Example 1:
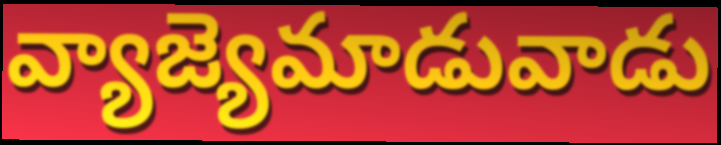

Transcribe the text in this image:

వ్యాజ్యెమాడువాడు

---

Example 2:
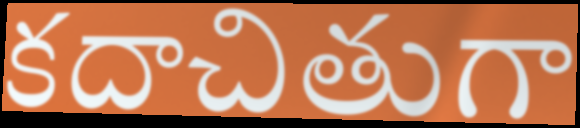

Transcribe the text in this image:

కదాచితుగా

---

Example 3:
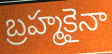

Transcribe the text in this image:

బ్రహ్మకైనా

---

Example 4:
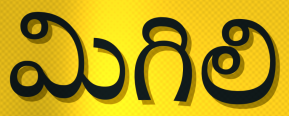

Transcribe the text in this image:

మిగిలి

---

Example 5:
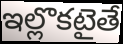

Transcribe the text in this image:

ఇల్లొకటైతే